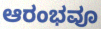
ಆರಂಭವೂ